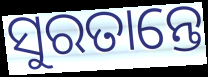
ସୁରତାନ୍ତେ